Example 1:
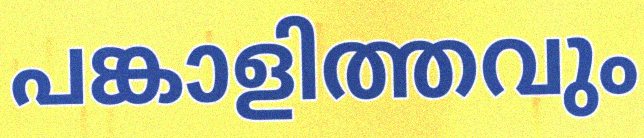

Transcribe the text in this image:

പങ്കാളിത്തവും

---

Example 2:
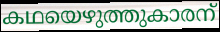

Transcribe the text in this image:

കഥയെഴുത്തുകാരന്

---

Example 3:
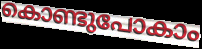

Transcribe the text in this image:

കൊണ്ടുപോകാം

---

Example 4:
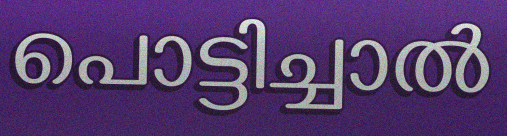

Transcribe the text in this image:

പൊട്ടിച്ചാൽ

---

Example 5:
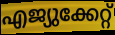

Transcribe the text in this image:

എജ്യുക്കേറ്റ്